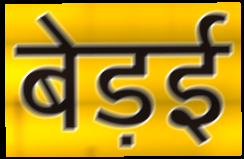
बेड़ई